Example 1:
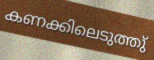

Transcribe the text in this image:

കണക്കിലെടുത്തു്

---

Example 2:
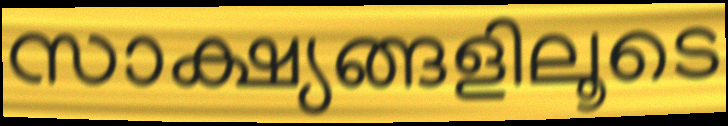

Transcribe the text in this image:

സാക്ഷ്യങ്ങളിലൂടെ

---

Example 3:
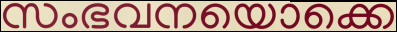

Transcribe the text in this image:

സംഭവനയൊക്കെ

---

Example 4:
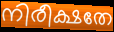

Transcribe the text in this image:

നിരീക്ഷതേ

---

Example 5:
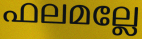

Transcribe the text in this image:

ഫലമല്ലേ